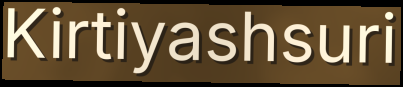
Kirtiyashsuri